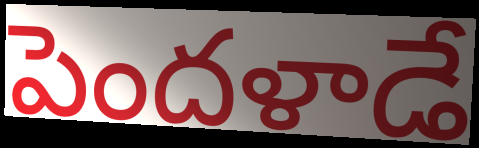
పెందళాడే